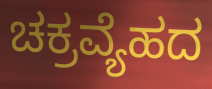
ಚಕ್ರವ್ಯೆಹದ